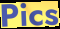
Pics